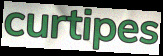
curtipes